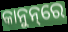
କାନୁନ୍‌ରେ